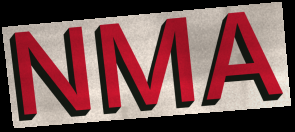
NMA